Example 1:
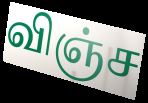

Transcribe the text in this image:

விஞ்ச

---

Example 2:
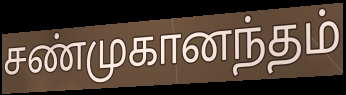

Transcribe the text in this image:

சண்முகானந்தம்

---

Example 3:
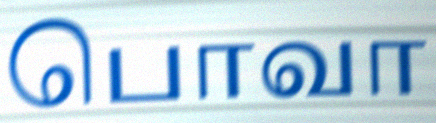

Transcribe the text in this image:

பொவா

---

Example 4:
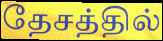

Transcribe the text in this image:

தேசத்தில்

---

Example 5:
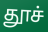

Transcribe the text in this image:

தூச்